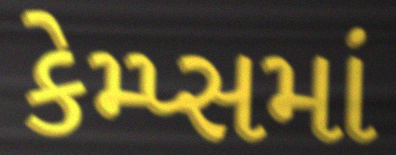
કેમ્પ્સમાં